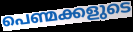
പെണ്മക്കളുടെ